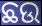
ଛଉ